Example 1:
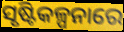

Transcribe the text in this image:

ସୃଷ୍ଟିକଳ୍ପନାରେ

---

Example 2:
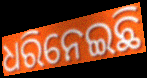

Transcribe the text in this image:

ଧରିନେଇଛି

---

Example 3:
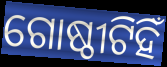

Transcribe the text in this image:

ଗୋଷ୍ଠୀଟିହିଁ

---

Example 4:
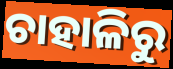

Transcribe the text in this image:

ଚାହାଳିରୁ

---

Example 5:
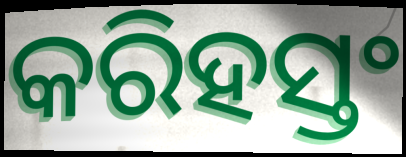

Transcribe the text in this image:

କରିହସ୍ତଂ